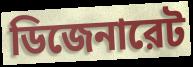
ডিজেনারেট